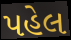
પહેલ